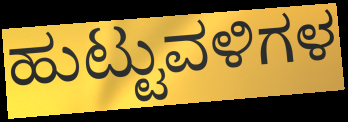
ಹುಟ್ಟುವಳಿಗಳ